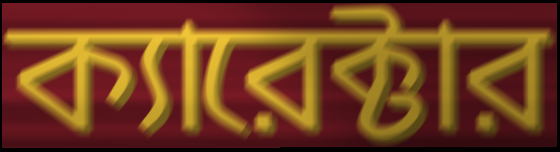
ক্যারেক্টার